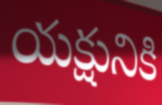
యక్షునికి